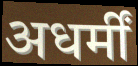
अधर्मीं